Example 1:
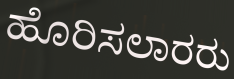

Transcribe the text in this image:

ಹೊರಿಸಲಾರರು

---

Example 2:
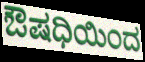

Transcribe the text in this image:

ಔಷಧಿಯಿಂದ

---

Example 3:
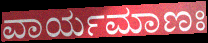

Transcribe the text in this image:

ವಾರ್ಯಮಾಣಃ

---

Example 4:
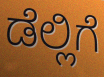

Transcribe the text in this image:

ಡೆಲ್ಲಿಗೆ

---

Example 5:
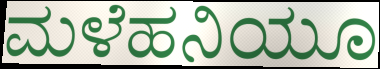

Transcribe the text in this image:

ಮಳೆಹನಿಯೂ